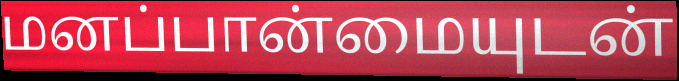
மனப்பான்மையுடன்